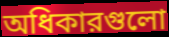
অধিকারগুলো